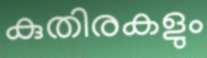
കുതിരകളും